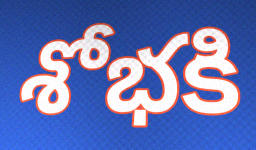
శోభకి